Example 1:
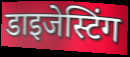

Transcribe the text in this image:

डाइजेस्टिंग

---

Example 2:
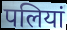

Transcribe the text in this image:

पलियां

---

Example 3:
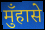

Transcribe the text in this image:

मुँहासे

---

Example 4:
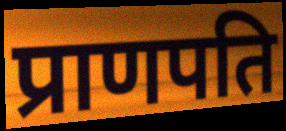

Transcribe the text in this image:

प्राणपति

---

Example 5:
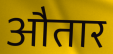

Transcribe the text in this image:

औतार